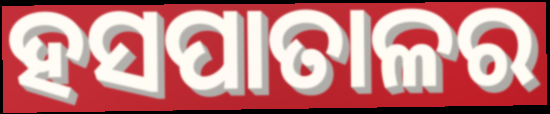
ହସପାତାଳର